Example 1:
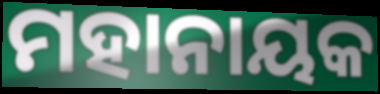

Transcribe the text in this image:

ମହାନାୟକ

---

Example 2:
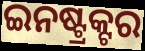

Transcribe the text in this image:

ଇନଷ୍ଟ୍ରକ୍ଟର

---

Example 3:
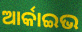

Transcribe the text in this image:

ଆର୍କାଇଭ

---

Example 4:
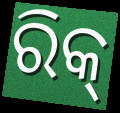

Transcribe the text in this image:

ରିକ୍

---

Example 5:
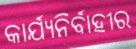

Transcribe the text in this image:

କାର୍ଯ୍ୟନିର୍ବାହୀର